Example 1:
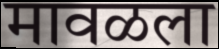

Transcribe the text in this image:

मावळला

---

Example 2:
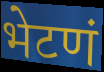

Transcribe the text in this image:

भेटणं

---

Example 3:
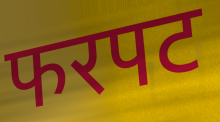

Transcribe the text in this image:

फरपट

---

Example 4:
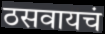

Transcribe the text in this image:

ठसवायचं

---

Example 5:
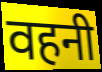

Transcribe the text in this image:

वहनी